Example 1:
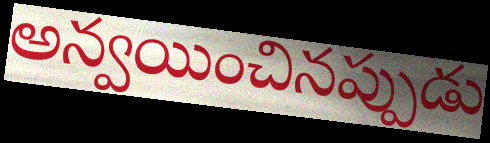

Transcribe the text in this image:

అన్వయించినప్పుడు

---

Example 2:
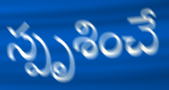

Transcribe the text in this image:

స్పృశించే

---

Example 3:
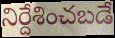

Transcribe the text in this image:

నిర్దేశించబడే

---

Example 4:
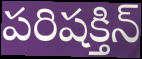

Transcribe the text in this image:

పరిషక్తిన్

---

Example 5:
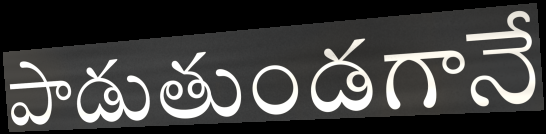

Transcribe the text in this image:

పాడుతుండగానే